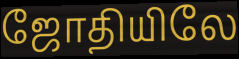
ஜோதியிலே